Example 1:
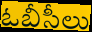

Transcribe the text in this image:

ఓబీసీలు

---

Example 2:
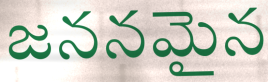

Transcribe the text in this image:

జననమైన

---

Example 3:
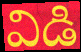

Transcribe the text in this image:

విడి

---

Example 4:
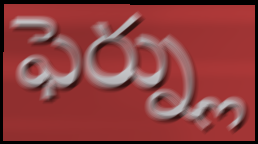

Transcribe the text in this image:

ఫెర్న్లు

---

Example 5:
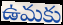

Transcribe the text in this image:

ఉమకు